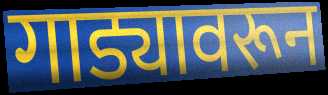
गाड्यावरून